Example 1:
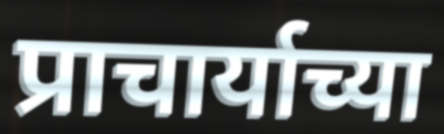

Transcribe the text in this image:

प्राचार्याच्या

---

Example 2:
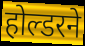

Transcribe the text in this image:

होल्डरने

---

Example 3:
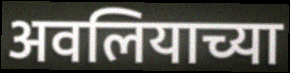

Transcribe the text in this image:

अवलियाच्या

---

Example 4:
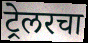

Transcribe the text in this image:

ट्रेलरचा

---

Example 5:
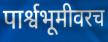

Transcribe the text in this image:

पार्श्वभूमीवरच